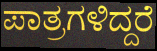
ಪಾತ್ರಗಳಿದ್ದರೆ